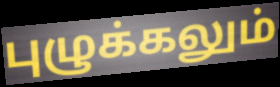
புழுக்கலும்